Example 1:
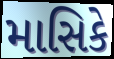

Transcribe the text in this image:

માસિકે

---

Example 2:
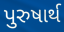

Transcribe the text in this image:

પુરુષાર્થ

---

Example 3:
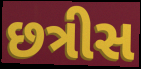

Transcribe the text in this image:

છત્રીસ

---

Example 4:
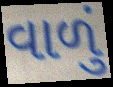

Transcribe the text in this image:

વાળું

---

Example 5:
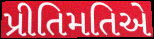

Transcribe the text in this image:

પ્રીતિમતિએ